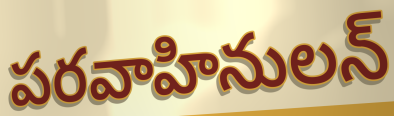
పరవాహినులన్